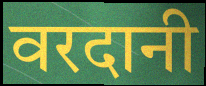
वरदानी